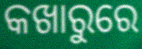
କଖାରୁରେ